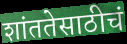
शांततेसाठीचं